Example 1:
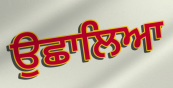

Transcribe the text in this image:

ਉਛਾਲਿਆ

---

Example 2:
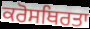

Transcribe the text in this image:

ਕਰੋਸਥਿਰਤਾ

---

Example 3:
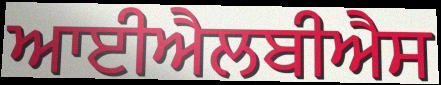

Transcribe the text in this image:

ਆਈਐਲਬੀਐਸ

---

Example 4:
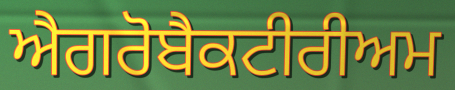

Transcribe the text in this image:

ਐਗਰੋਬੈਕਟੀਰੀਅਮ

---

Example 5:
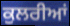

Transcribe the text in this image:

ਕੁਲਰੀਆਂ